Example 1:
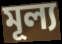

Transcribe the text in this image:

মূল্য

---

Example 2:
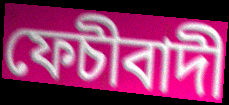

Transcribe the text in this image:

ফেচীবাদী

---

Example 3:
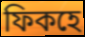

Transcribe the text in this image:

ফিকহে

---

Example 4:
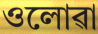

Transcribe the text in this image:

ওলোৱা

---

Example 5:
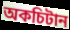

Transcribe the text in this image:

অকচিটান